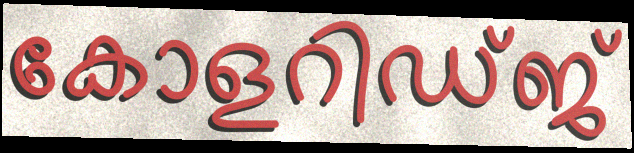
കോളറിഡ്ജ്